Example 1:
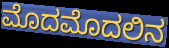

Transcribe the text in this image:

ಮೊದಮೊದಲಿನ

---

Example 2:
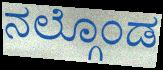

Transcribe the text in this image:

ನಲ್ಗೊಂಡ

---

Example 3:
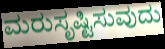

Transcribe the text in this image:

ಮರುಸೃಷ್ಟಿಸುವುದು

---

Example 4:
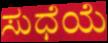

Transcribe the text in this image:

ಸುಧೆಯೆ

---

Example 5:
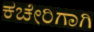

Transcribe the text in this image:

ಕಚೇರಿಗಾಗಿ